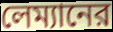
লেম্যানের